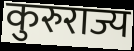
कुरुराज्य